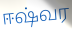
ஈஷ்வர